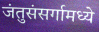
जंतुसंसर्गामध्ये